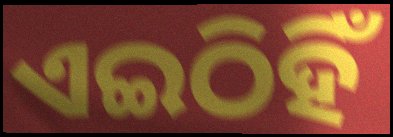
ଏଇଠିହିଁ